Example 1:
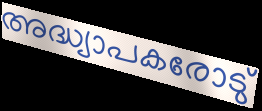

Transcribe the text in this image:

അദ്ധ്യാപകരോടു്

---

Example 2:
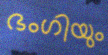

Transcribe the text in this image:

ഭംഗിയും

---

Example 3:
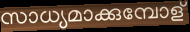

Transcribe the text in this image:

സാധ്യമാക്കുമ്പോള്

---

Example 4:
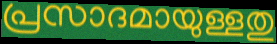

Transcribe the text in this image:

പ്രസാദമായുള്ളതു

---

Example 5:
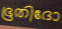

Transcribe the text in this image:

ഭൂതിദോ